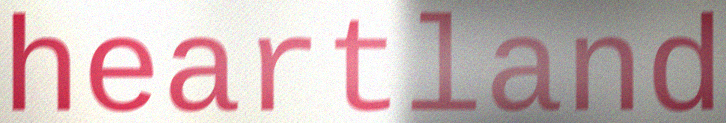
heartland